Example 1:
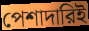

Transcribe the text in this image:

পেশাদারিই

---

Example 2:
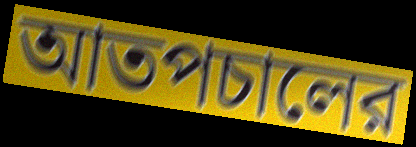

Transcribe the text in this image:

আতপচালের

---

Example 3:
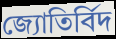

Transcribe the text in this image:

জ্যোতির্বিদ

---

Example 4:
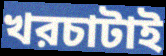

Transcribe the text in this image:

খরচাটাই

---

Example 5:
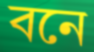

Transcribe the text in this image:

বনে